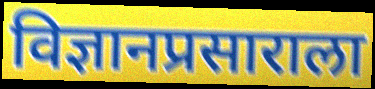
विज्ञानप्रसाराला